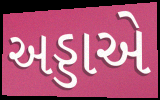
અડ્ડાએ